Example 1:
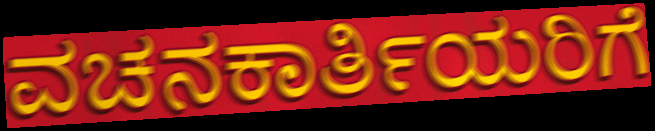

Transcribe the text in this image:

ವಚನಕಾರ್ತಿಯರಿಗೆ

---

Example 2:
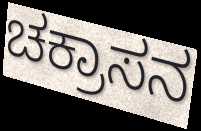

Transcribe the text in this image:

ಚಕ್ರಾಸನ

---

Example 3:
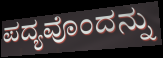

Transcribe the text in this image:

ಪದ್ಯವೊಂದನ್ನು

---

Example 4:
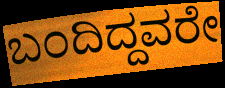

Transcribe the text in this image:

ಬಂದಿದ್ದವರೇ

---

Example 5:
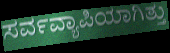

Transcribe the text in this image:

ಸರ್ವವ್ಯಾಪಿಯಾಗಿತ್ತು